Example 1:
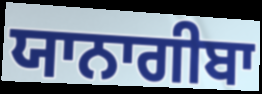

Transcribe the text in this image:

ਯਾਨਾਗੀਬਾ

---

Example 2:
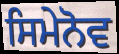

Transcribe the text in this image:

ਸਿਮੇਨੋਵ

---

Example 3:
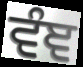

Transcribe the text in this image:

ਵੰਞ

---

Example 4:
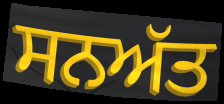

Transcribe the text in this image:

ਸਨਅੱਤ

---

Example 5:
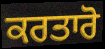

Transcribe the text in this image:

ਕਰਤਾਰੋ